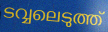
ടവ്വലെടുത്ത്